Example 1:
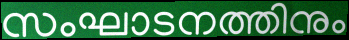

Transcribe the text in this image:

സംഘാടനത്തിനും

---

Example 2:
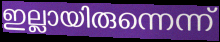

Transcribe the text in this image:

ഇല്ലായിരുന്നെന്ന്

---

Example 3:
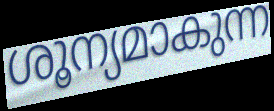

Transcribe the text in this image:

ശൂന്യമാകുന്ന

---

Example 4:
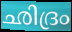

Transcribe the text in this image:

ഛിദ്രം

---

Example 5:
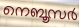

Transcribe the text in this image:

നെബൂസർ